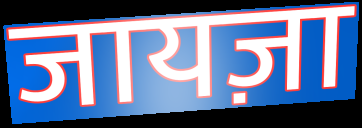
जायज़ा